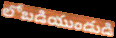
లోబడియుండుడి